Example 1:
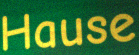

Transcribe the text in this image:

Hause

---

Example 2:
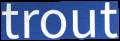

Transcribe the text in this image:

trout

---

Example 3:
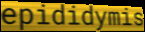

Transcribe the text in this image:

epididymis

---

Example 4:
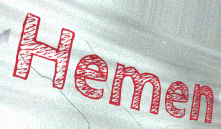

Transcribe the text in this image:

Hemen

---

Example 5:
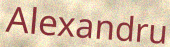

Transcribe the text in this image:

Alexandru